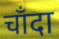
चाँदा